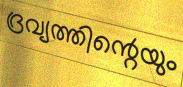
ദ്രവ്യത്തിന്റെയും